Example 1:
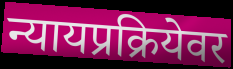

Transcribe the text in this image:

न्यायप्रक्रियेवर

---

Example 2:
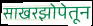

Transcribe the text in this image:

साखरझोपेतून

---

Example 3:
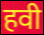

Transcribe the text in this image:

हवी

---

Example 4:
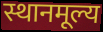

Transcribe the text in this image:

स्थानमूल्य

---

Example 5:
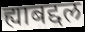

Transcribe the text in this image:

ह्याबद्दल